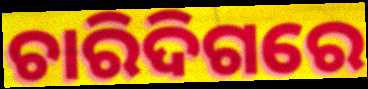
ଚାରିଦିଗରେ